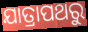
ଯାତ୍ରାପଥରୁ